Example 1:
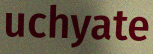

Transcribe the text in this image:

uchyate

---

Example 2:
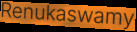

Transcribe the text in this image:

Renukaswamy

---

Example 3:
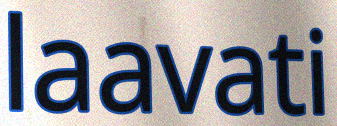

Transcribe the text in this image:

laavati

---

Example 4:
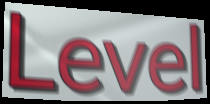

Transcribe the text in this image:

Level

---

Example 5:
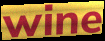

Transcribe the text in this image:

wine